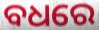
ବଧରେ